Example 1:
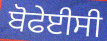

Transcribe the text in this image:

ਬੋਫੇਈਸੀ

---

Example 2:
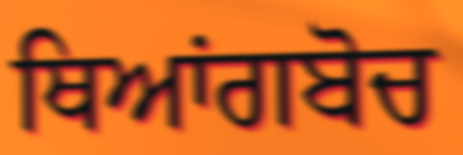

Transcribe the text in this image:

ਥਿਆਂਗਬੋਚ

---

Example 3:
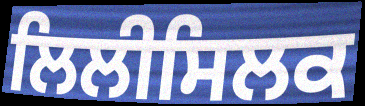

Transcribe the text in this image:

ਲਿਲੀਸਿਲਕ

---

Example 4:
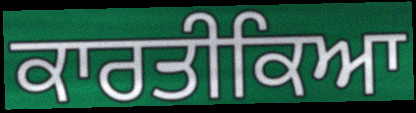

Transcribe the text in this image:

ਕਾਰਤੀਕਿਆ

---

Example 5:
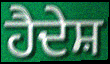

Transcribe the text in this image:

ਹੈਦੇਸ਼